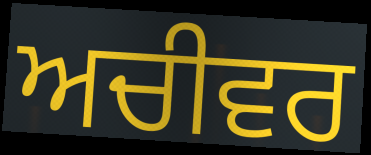
ਅਚੀਵਰ